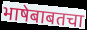
भाषेबाबतचा